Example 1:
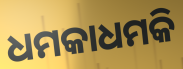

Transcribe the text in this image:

ଧମକାଧମକି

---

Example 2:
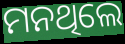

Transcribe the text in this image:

ମନଥିଲେ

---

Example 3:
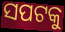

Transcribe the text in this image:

ସପଟକୁ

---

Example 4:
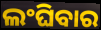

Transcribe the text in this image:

ଲଂଘିବାର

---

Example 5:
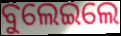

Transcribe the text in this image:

ବୁଲେଇଲେ